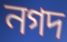
নগদ